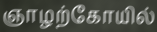
ஞாழற்கோயில்